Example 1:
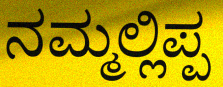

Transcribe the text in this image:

ನಮ್ಮಲ್ಲಿಪ್ಪ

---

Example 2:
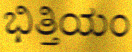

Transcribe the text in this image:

ಭಿತ್ತಿಯಂ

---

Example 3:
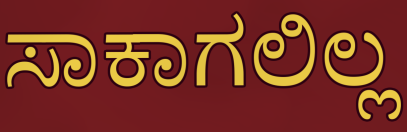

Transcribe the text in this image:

ಸಾಕಾಗಲಿಲ್ಲ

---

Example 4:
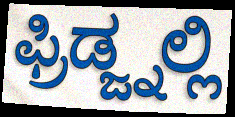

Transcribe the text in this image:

ಫ್ರಿಡ್ಜ್ನಲ್ಲಿ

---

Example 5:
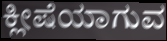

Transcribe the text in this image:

ಕ್ಲೀಷೆಯಾಗುವ